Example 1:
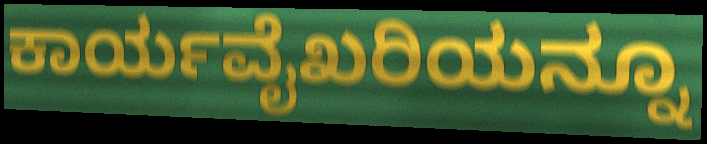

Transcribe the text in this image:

ಕಾರ್ಯವೈಖರಿಯನ್ನೂ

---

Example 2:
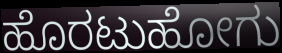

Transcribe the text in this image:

ಹೊರಟುಹೋಗು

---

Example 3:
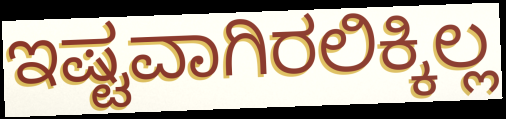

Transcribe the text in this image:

ಇಷ್ಟವಾಗಿರಲಿಕ್ಕಿಲ್ಲ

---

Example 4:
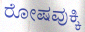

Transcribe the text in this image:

ರೋಷವುಕ್ಕಿ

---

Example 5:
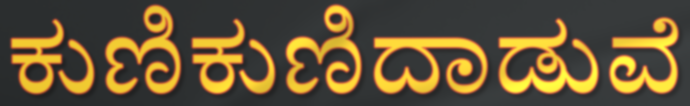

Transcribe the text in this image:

ಕುಣಿಕುಣಿದಾಡುವೆ